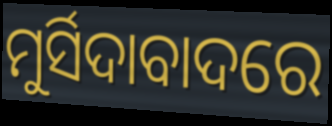
ମୁର୍ସିଦାବାଦରେ